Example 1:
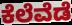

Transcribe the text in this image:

ಕೆಲೆವೆಡೆ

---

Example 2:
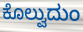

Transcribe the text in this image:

ಕೊಲ್ವುದುಂ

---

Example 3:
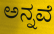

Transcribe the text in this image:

ಅನ್ನವೆ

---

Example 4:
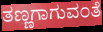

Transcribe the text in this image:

ತಣ್ಣಗಾಗುವಂತೆ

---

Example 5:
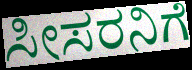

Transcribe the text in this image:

ಸೀಸರನಿಗೆ